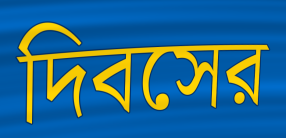
দিবসের